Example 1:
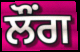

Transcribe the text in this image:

ਲੌਂਗ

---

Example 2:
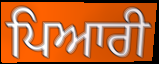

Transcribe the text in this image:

ਪਿਆਰੀ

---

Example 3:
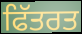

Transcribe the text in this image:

ਫਿੱਤਰਤ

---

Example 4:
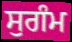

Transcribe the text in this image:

ਸੁਗੰਮ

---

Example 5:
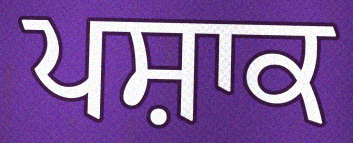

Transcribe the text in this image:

ਪਸ਼ਾਕ